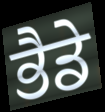
ਭੈਡੇ